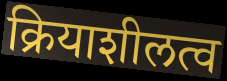
क्रियाशीलत्व